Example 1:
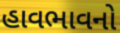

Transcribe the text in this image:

હાવભાવનો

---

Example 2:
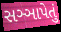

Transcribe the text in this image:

સઞ્ઞાપેતું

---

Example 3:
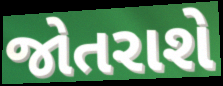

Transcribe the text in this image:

જોતરાશે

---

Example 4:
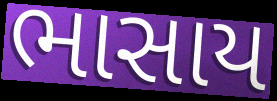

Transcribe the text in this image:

ભાસાય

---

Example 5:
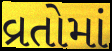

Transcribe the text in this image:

વ્રતોમાં